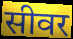
सीवर